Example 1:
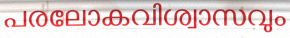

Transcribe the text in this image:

പരലോകവിശ്വാസവും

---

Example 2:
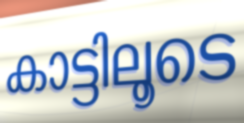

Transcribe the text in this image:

കാട്ടിലൂടെ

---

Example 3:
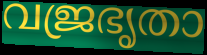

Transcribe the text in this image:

വജ്രഭൃതാ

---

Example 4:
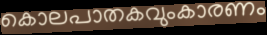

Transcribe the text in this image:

കൊലപാതകവുംകാരണം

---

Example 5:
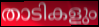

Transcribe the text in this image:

താടികളും